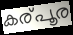
കര്പൂര